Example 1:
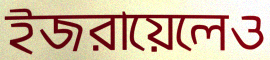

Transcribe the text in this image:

ইজরায়েলেও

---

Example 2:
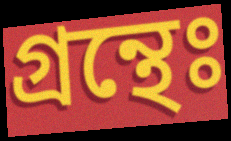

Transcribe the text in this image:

গ্রন্থেঃ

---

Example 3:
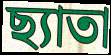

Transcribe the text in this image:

ছ্যাতা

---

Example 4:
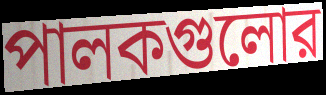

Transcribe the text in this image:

পালকগুলোর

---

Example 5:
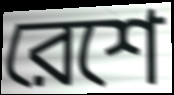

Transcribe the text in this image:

রেশে